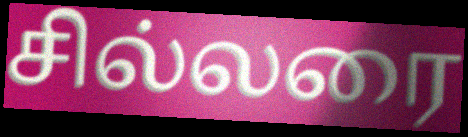
சில்லரை